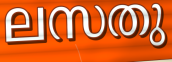
ലസതു